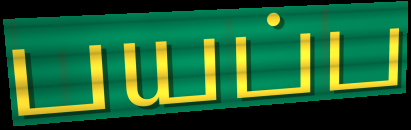
பயப்ப